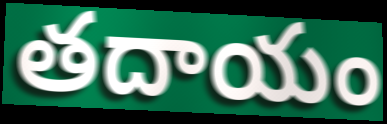
తదాయం